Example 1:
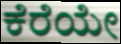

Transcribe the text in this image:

ಕೆರೆಯೇ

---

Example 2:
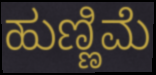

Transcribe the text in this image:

ಹುಣ್ಣಿಮೆ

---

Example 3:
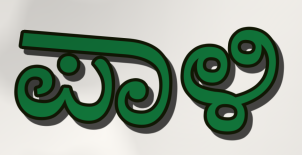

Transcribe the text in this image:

ಪಾಳಿ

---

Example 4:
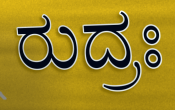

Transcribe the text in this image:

ರುದ್ರಃ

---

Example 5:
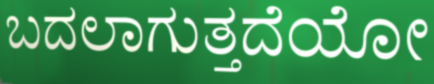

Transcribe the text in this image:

ಬದಲಾಗುತ್ತದೆಯೋ